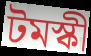
টমস্কী